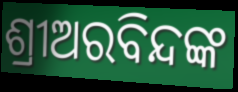
ଶ୍ରୀଅରବିନ୍ଦଙ୍କ